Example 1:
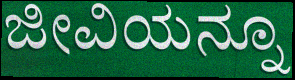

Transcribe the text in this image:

ಜೀವಿಯನ್ನೂ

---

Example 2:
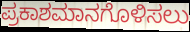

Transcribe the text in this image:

ಪ್ರಕಾಶಮಾನಗೊಳಿಸಲು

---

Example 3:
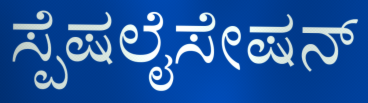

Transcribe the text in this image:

ಸ್ಪೆಷಲೈಸೇಷನ್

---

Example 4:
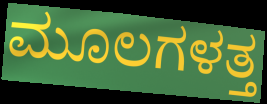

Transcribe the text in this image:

ಮೂಲಗಳತ್ತ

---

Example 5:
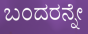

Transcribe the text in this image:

ಬಂದರನ್ನೇ